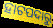
ହାଟପଦାରୁ